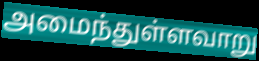
அமைந்துள்ளவாறு